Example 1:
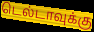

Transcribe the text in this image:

டெல்டாவுக்கு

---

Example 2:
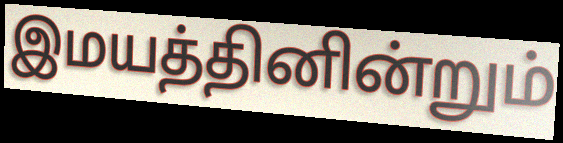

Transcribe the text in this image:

இமயத்தினின்றும்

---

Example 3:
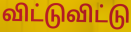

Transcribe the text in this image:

விட்டுவிட்டு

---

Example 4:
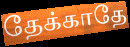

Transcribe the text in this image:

தேக்காதே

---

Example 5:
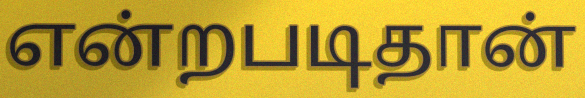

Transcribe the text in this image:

என்றபடிதான்